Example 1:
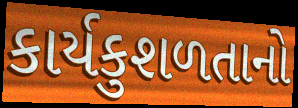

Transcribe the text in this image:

કાર્યકુશળતાનો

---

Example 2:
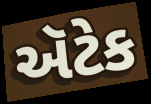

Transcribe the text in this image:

ઍટેક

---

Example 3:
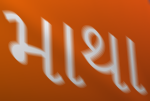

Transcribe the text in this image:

માથા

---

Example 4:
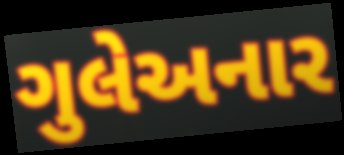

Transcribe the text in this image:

ગુલેઅનાર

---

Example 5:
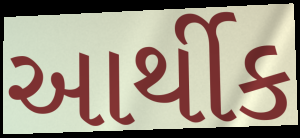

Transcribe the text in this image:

આર્થીક